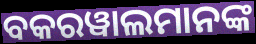
ବକରୱାଲମାନଙ୍କ